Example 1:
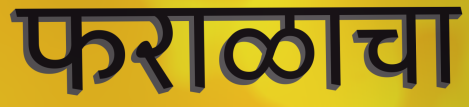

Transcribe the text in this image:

फराळाचा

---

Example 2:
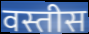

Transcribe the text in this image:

वस्तीस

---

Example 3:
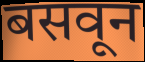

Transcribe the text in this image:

बसवून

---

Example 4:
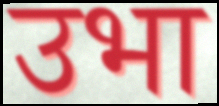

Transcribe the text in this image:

उभा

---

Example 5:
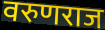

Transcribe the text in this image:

वरुणराज